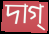
দাগ্